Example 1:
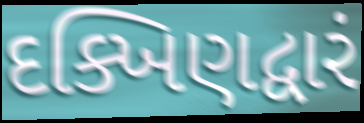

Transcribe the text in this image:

દક્ખિણદ્વારં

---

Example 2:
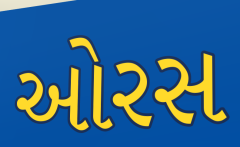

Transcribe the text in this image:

ઓરસ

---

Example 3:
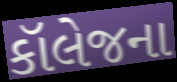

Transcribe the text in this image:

કૉલેજના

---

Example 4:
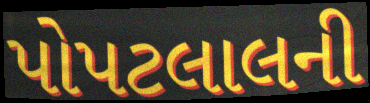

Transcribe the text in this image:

પોપટલાલની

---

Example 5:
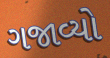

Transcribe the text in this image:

ગજાવ્યો